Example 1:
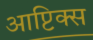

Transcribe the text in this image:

आप्टिक्स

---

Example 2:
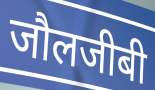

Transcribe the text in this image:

जौलजीबी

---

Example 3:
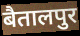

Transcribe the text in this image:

बैतालपुर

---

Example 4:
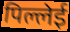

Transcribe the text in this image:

पिल्लेई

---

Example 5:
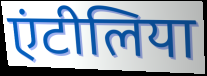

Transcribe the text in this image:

एंटीलिया